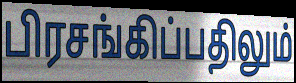
பிரசங்கிப்பதிலும்